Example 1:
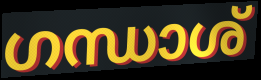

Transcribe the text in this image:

ഗന്ധാശ്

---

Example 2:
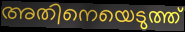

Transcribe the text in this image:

അതിനെയെടുത്ത്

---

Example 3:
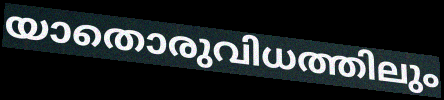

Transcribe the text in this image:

യാതൊരുവിധത്തിലും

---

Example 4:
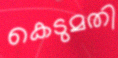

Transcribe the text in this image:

കെടുമതി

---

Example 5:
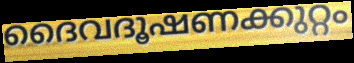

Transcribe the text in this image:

ദൈവദൂഷണക്കുറ്റം